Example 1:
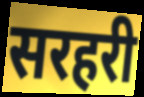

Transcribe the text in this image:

सरहरी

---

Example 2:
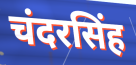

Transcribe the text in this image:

चंदरसिंह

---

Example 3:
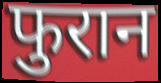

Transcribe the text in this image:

फुरान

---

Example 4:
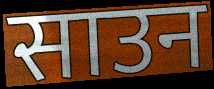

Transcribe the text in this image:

साउन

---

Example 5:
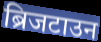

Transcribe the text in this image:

ब्रिजटाउन